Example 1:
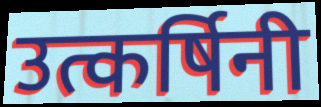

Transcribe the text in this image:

उत्कर्षिनी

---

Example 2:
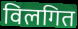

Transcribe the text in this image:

विलगित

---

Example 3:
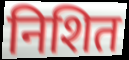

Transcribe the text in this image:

निशित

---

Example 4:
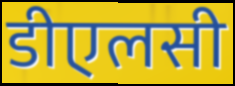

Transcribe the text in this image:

डीएलसी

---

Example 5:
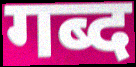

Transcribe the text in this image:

गब्द